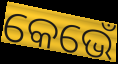
କେଭେଁ